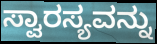
ಸ್ವಾರಸ್ಯವನ್ನು